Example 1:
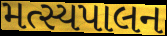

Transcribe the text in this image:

મત્સ્યપાલન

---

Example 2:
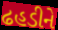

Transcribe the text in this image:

ઢહડીને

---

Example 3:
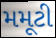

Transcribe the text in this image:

મમૂટી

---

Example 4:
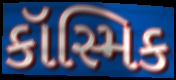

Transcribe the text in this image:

કૉસ્મિક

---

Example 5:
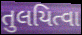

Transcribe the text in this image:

તુલયિત્વા